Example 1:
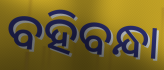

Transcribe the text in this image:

ବହିବନ୍ଧା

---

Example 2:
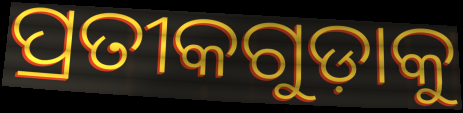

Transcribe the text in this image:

ପ୍ରତୀକଗୁଡ଼ାକୁ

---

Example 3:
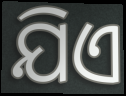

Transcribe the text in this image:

ଯିଏ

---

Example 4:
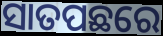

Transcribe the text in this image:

ସାତପଛରେ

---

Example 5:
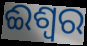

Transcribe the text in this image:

ଈଶ୍ବର